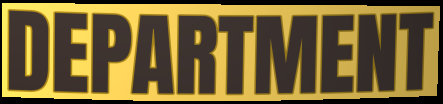
DEPARTMENT